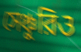
সেঞ্চুরিও